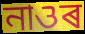
নাওৰ